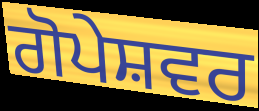
ਗੋਪੇਸ਼ਵਰ